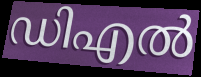
ഡിഎൽ